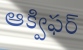
ఆక్విఫర్